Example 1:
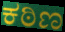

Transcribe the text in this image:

ಕಠಿಣ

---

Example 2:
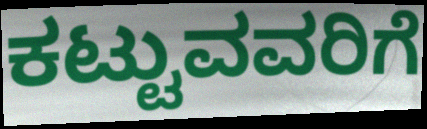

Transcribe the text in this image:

ಕಟ್ಟುವವರಿಗೆ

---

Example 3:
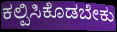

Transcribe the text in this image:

ಕಲ್ಪಿಸಿಕೊಡಬೇಕು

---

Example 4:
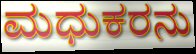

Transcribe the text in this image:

ಮಧುಕರನು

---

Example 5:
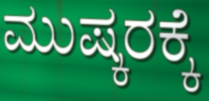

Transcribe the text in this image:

ಮುಷ್ಕರಕ್ಕೆ